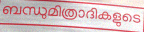
ബന്ധുമിത്രാദികളുടെ